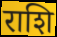
राशि